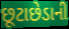
છૂટાછેડાની